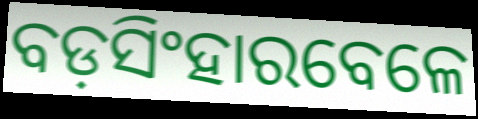
ବଡ଼ସିଂହାରବେଳେ